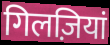
गिलज़ियां